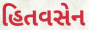
હિતવસેન